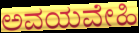
ಅವಯವೇಹಿ